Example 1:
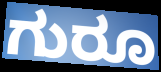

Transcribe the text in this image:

ಗುರೂ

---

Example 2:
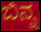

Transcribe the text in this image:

ಬಿನ್ನ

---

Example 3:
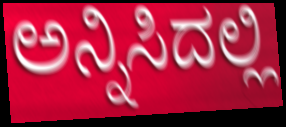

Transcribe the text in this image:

ಅನ್ನಿಸಿದಲ್ಲಿ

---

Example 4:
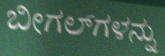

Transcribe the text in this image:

ಬೀಗಲ್‌ಗಳನ್ನು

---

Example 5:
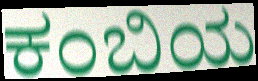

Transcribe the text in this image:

ಕಂಬಿಯ